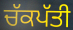
ਚੱਕਪੱਤੀ